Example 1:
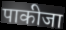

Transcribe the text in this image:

पाकीजा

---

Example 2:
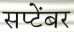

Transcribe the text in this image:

सप्टेंबर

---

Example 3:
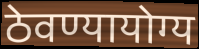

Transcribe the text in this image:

ठेवण्यायोग्य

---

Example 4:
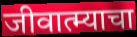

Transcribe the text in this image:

जीवात्म्याचा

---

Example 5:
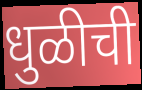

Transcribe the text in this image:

धुळीची